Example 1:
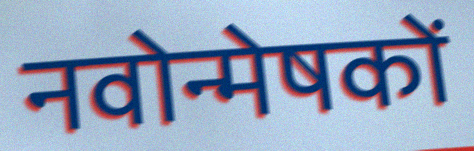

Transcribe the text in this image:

नवोन्‍मेषकों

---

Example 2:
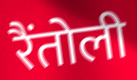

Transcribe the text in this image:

रैंतोली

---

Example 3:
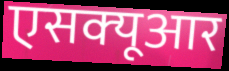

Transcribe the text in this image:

एसक्यूआर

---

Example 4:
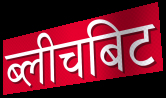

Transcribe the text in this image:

ब्लीचबिट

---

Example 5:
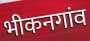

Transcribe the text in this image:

भीकनगांव